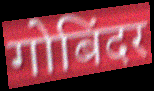
गोबिंदर